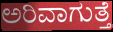
ಅರಿವಾಗುತ್ತೆ